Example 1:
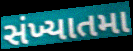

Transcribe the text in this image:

સંખ્યાતમા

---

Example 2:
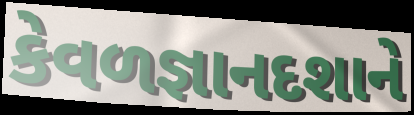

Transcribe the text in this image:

કેવળજ્ઞાનદશાને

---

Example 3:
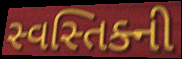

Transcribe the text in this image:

સ્વસ્તિક્ની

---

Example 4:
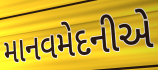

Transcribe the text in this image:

માનવમેદનીએ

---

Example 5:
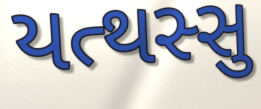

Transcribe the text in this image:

યત્થસ્સુ